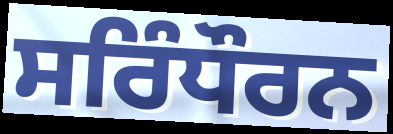
ਸਰਿੰਧੌਰਨ